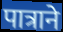
पात्राने